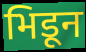
भिडून